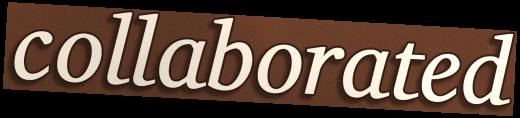
collaborated